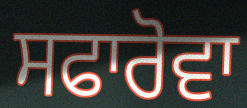
ਸਫਾਰੋਵਾ